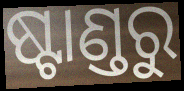
ଷ୍ଟାଣ୍ଡରୁ